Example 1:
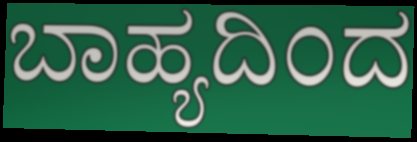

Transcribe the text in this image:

ಬಾಹ್ಯದಿಂದ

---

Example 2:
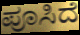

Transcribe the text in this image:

ಪೂಸಿದೆ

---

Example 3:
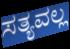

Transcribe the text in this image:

ಸತ್ಯವಲ್ಲ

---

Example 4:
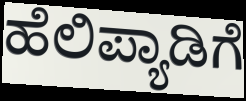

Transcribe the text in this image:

ಹೆಲಿಪ್ಯಾಡಿಗೆ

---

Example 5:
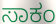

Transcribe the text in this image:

ಸಾಕಂ